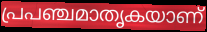
പ്രപഞ്ചമാതൃകയാണ്